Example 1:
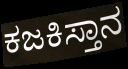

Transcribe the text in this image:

ಕಜಕಿಸ್ತಾನ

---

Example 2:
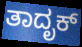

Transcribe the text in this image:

ತಾದೃಕ್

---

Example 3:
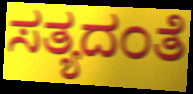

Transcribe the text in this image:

ಸತ್ಯದಂತೆ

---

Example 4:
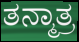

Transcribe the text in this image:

ತನ್ಮಾತ್ರ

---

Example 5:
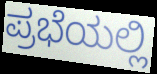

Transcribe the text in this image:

ಪ್ರಭೆಯಲ್ಲಿ